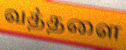
வத்தளை